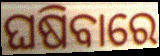
ଘଷିବାରେ